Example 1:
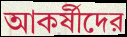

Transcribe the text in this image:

আকর্ষীদের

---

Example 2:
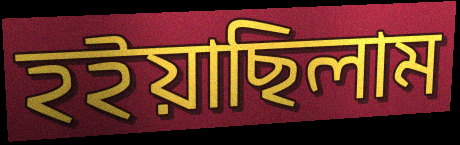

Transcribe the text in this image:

হইয়াছিলাম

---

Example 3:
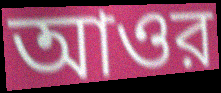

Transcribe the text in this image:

আওর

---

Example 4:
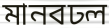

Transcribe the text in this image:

মানবঢল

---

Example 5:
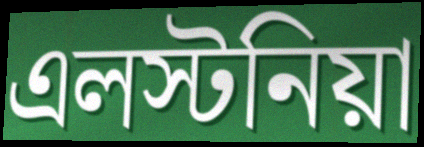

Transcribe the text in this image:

এলস্টনিয়া